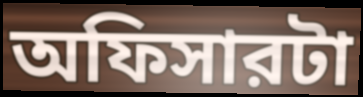
অফিসারটা